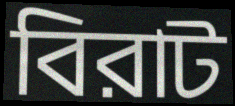
বিরাট